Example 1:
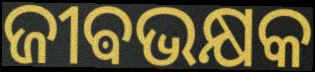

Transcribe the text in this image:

ଜୀଵଭକ୍ଷକ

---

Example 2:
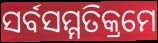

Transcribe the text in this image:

ସର୍ବସମ୍ମତିକ୍ରମେ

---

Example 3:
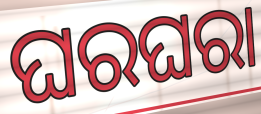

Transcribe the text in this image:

ଘରଘରା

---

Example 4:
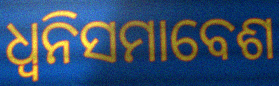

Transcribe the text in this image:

ଧ୍ୱନିସମାବେଶ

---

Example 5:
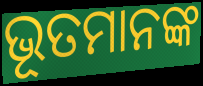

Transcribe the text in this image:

ଭୂତମାନଙ୍କ